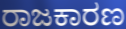
ರಾಜಕಾರಣ